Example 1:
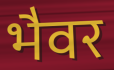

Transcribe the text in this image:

भैवर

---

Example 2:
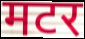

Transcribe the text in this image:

मटर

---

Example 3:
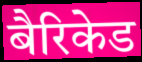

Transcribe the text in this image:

बैरिकेड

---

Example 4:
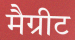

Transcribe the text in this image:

मैग्रीट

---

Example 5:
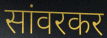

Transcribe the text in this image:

सांवरकर